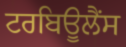
ਟਰਬਿਊਲੈਂਸ